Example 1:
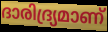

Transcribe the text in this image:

ദാരിദ്ര്യമാണ്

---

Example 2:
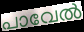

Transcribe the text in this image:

പാവേൽ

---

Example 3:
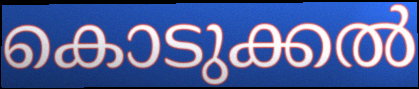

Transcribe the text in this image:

കൊടുക്കൽ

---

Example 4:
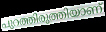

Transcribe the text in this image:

പുറത്തിരുത്തിയാണ്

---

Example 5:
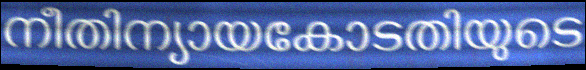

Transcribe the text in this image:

നീതിന്യായകോടതിയുടെ